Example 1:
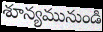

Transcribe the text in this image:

శూన్యమునుండి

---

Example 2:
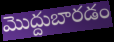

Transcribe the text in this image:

మొద్దుబారడం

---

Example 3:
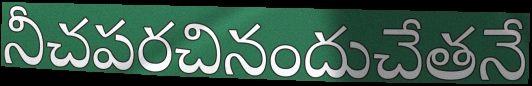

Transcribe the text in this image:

నీచపరచినందుచేతనే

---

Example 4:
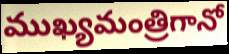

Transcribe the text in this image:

ముఖ్యమంత్రిగానో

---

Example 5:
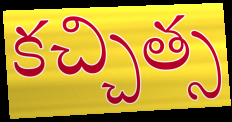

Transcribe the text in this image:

కచ్చిత్స